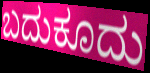
ಬದುಕೂದು